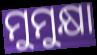
ମୁମୁକ୍ଷା